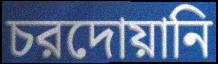
চরদোয়ানি